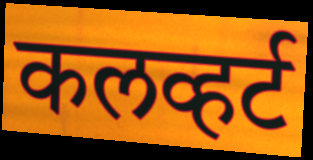
कलव्हर्ट